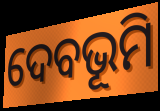
ଦେବଭୂମି